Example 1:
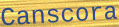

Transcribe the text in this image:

Canscora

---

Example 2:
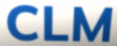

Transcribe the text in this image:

CLM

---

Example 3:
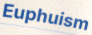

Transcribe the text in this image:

Euphuism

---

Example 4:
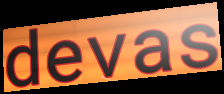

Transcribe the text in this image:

devas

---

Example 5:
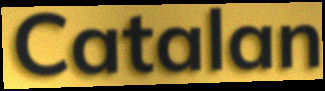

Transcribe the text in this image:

Catalan